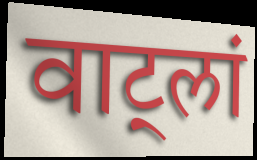
वाट्लां